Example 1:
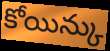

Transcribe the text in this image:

కోయిన్కు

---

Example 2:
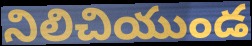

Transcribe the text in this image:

నిలిచియుండ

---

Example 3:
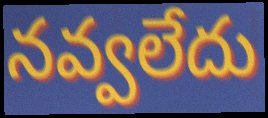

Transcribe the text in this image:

నవ్వలేదు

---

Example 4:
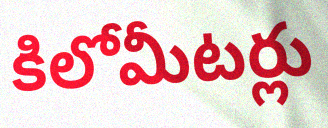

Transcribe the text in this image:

కిలోమీటర్లు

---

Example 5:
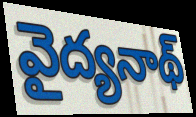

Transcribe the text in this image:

వైద్యనాథ్